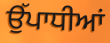
ਉੱਪਾਧੀਆਂ